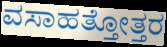
ವಸಾಹತ್ತೋತ್ತರ